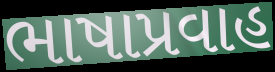
ભાષાપ્રવાહ